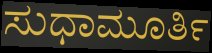
ಸುಧಾಮೂರ್ತಿ